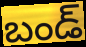
బండ్